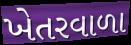
ખેતરવાળા